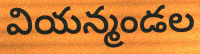
వియన్మండల